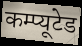
कम्प्यूटेड